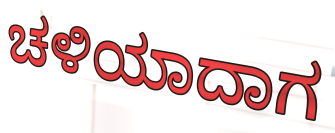
ಚಳಿಯಾದಾಗ